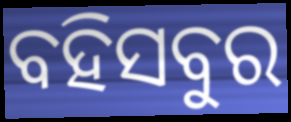
ବହିସବୁର